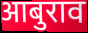
आबुराव